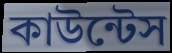
কাউন্টেস